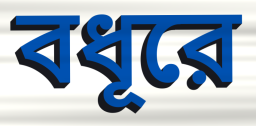
বধূরে